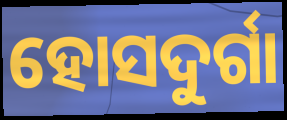
ହୋସଦୁର୍ଗା